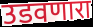
उडवणारा